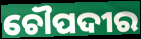
ଚୌପଦୀର